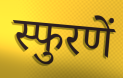
स्फुरणें